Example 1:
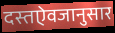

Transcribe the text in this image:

दस्तऐवजानुसार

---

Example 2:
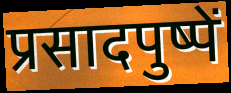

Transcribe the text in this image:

प्रसादपुष्पें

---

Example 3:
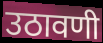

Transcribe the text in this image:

उठावणी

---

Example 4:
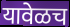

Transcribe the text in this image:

यावेळच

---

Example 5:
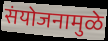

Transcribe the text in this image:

संयोजनामुळे